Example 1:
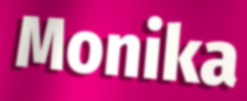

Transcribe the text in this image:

Monika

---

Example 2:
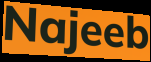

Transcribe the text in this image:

Najeeb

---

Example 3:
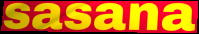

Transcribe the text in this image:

sasana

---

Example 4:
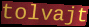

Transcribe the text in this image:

tolvajt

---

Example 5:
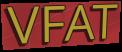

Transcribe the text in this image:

VFAT